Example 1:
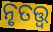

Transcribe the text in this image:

ନୃତତ୍ତ୍ଵ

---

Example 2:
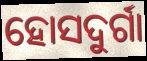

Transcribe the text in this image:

ହୋସଦୁର୍ଗା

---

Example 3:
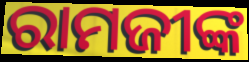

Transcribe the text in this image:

ରାମଜୀଙ୍କ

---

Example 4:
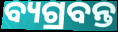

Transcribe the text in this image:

ବ୍ୟଗ୍ରବନ୍ତ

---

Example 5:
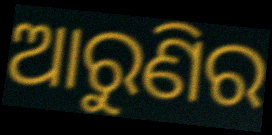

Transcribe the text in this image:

ଆରୁଣିର